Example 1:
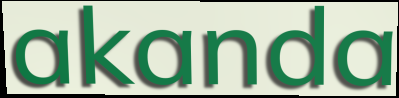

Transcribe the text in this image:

akanda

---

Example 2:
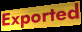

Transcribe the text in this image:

Exported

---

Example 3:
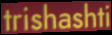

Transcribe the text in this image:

trishashti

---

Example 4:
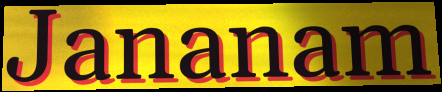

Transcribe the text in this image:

Jananam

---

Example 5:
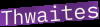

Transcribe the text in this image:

Thwaites